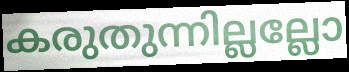
കരുതുന്നില്ലല്ലോ